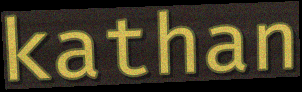
kathan